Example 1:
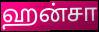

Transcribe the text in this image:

ஹன்சா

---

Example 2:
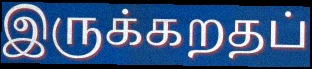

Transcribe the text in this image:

இருக்கறதப்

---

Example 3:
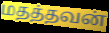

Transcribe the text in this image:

மதத்தவன்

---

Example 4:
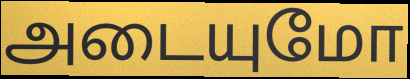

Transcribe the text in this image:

அடையுமோ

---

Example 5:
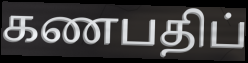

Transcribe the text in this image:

கணபதிப்